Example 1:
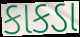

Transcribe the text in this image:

કાકડા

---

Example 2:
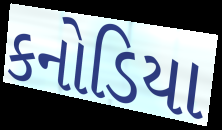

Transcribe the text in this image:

કનોડિયા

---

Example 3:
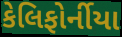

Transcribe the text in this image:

કેલિફોર્નીયા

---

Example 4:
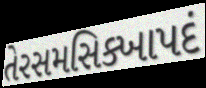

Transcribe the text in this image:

તેરસમસિક્ખાપદં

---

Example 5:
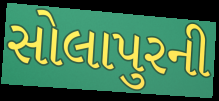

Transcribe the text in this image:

સોલાપુરની